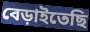
বেড়াইতেছি